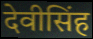
देवीसिंह